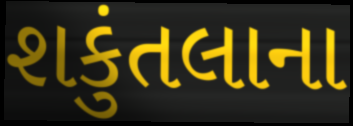
શકુંતલાના